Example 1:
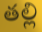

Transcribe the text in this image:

తల్లి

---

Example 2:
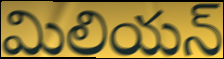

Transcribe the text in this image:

మిలియన్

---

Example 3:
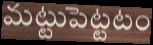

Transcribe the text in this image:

మట్టుపెట్టటం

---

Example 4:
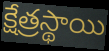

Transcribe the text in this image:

క్షేత్రస్థాయి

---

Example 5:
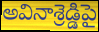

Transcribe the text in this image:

అవినాశ్రెడ్డిపై